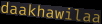
daakhawilaa